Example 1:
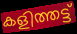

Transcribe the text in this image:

കളിത്തട്ട്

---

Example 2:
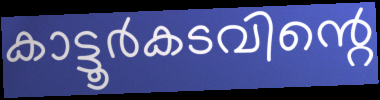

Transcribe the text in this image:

കാട്ടൂർകടവിന്റെ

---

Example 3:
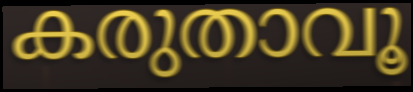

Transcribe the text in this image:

കരുതാവൂ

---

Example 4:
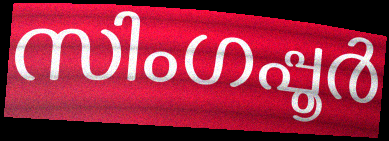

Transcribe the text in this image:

സിംഗപ്പൂർ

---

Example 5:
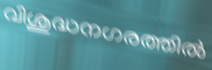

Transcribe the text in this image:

വിശുദ്ധനഗരത്തിൽ